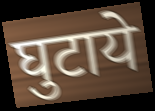
घुटाये